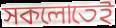
সকলোতেই